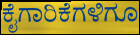
ಕೈಗಾರಿಕೆಗಳಿಗೂ